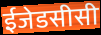
ईजेडसीसी